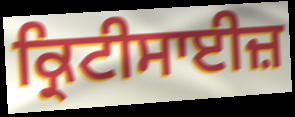
ਕ੍ਰਿਟੀਸਾਈਜ਼